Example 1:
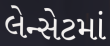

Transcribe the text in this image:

લેન્સેટમાં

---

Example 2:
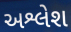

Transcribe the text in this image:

અશ્લેશ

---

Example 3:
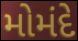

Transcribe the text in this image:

મોમંદે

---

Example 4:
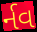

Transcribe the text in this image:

ર્નવ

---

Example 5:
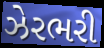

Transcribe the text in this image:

ઝેરભરી